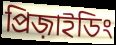
প্রিজ়াইডিং